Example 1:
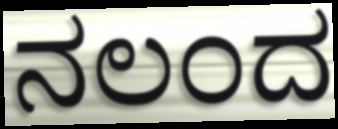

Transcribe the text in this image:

ನಲಂದ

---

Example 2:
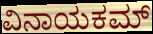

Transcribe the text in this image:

ವಿನಾಯಕಮ್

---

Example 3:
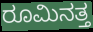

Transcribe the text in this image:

ರೂಮಿನತ್ತ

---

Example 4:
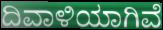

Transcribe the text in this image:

ದಿವಾಳಿಯಾಗಿವೆ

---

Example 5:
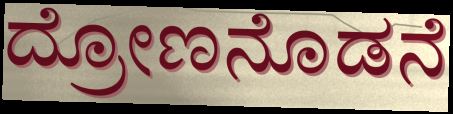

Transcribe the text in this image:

ದ್ರೋಣನೊಡನೆ